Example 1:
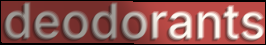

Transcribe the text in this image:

deodorants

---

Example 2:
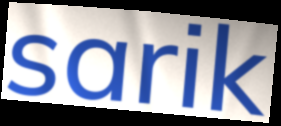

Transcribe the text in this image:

sarik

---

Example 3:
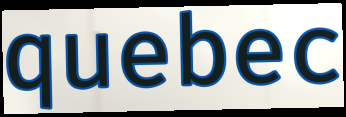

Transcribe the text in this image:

quebec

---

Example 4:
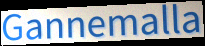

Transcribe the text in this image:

Gannemalla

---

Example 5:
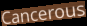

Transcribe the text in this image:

Cancerous